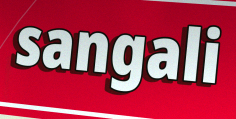
sangali